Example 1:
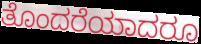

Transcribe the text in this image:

ತೊಂದರೆಯಾದರೂ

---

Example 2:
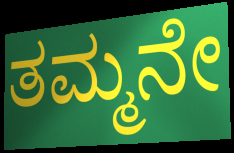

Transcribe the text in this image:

ತಮ್ಮನೇ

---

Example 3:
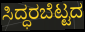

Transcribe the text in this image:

ಸಿದ್ಧರಬೆಟ್ಟದ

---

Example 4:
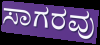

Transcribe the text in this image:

ಸಾಗರವು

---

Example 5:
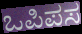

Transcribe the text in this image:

ಒಪಿಪಸ